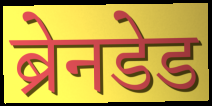
ब्रेनडेड